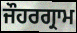
ਜੌਹਰਗ੍ਰਾਮ